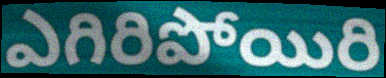
ఎగిరిపోయిరి